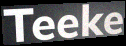
Teeke